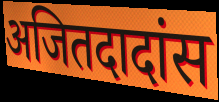
अजितदादांस